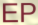
EP